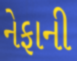
નેફાની